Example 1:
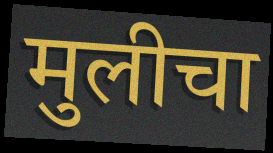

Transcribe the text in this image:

मुलीचा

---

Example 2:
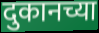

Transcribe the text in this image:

दुकानच्या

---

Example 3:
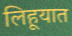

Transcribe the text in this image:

लिहूयात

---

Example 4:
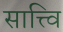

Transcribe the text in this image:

सात्त्वि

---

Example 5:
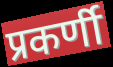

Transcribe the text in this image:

प्रकर्णी